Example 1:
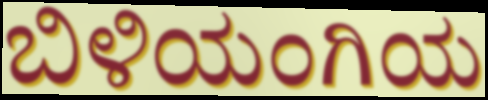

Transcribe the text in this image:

ಬಿಳಿಯಂಗಿಯ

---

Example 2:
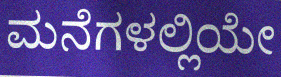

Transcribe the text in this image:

ಮನೆಗಳಲ್ಲಿಯೇ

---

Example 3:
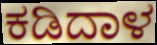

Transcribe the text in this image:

ಕಡಿದಾಳ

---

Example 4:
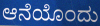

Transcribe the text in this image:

ಆನೆಯೊಂದು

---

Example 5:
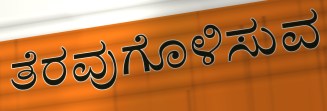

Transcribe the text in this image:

ತೆರವುಗೊಳಿಸುವ